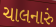
ચાલનારું